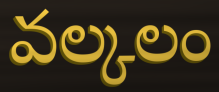
వల్కలం